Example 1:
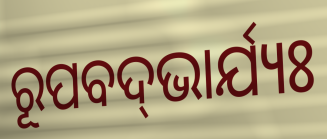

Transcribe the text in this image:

ରୂପବଦ୍‌ଭାର୍ଯ୍ୟଃ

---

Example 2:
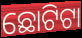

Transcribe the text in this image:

ଛୋଟିଟା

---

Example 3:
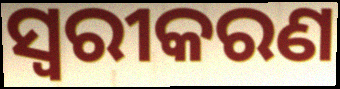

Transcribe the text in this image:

ସ୍ୱରୀକରଣ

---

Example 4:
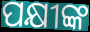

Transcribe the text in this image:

ପକ୍ଷୀଙ୍କ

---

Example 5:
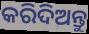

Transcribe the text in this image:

କରିଦିଅନ୍ତୁ